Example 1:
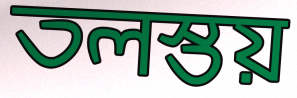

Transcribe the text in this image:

তলস্তয়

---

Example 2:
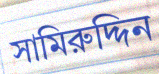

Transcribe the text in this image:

সামিরুদ্দিন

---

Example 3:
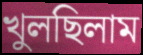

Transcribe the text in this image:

খুলছিলাম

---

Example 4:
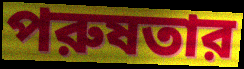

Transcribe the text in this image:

পরুষতার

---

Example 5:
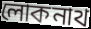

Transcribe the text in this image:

লোকনাথ